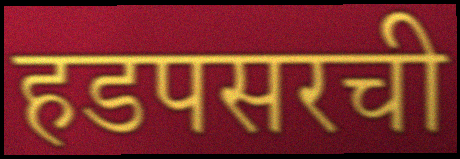
हडपसरची